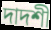
দাদশী